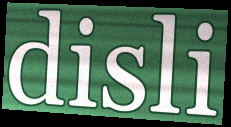
disli